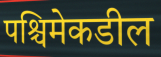
पश्चिमेकडील